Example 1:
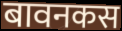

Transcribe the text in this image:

बावनकस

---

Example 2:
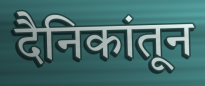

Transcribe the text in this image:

दैनिकांतून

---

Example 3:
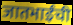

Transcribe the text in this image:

जातभाईंची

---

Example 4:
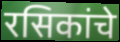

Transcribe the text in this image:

रसिकांचे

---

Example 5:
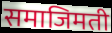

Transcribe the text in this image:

समाजिमती